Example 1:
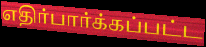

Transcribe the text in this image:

எதிர்பார்க்கப்பட்ட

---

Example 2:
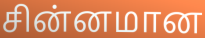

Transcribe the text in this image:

சின்னமான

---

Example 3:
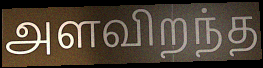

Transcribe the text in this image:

அளவிறந்த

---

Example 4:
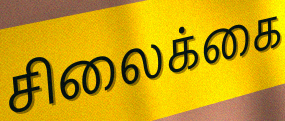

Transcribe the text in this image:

சிலைக்கை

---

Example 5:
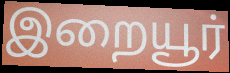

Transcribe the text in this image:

இறையூர்